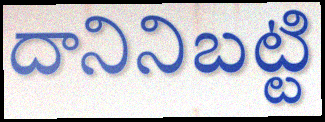
దానినిబట్టి